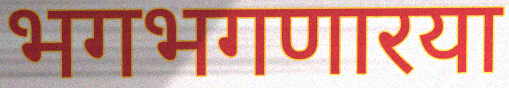
भगभगणारया